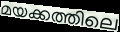
മയക്കത്തിലെ